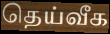
தெய்வீக